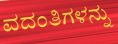
ವದಂತಿಗಳನ್ನು